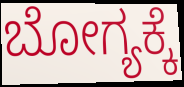
ಬೋಗ್ಯಕ್ಕೆ